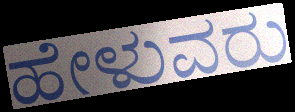
ಹೇಳುವರು